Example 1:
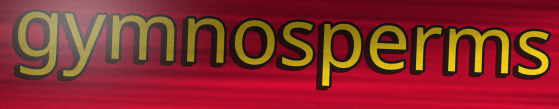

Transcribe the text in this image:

gymnosperms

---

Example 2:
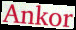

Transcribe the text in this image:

Ankor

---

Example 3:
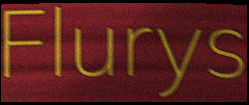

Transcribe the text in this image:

Flurys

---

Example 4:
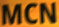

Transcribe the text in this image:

MCN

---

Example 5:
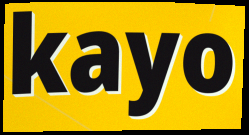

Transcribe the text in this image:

kayo